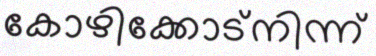
കോഴിക്കോട്നിന്ന്